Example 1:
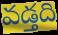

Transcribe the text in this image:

వడ్తది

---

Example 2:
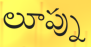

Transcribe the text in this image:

లూప్ను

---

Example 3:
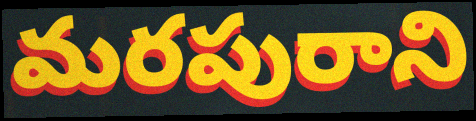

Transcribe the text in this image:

మరపురాని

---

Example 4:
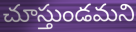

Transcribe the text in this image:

చూస్తుండమని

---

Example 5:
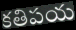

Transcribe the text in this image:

కతిపయ